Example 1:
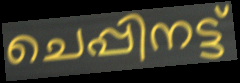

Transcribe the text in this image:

ചെപ്പിനട്ട്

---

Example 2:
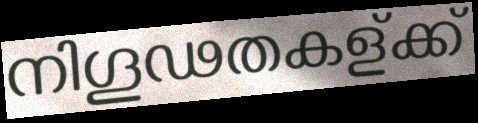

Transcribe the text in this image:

നിഗൂഢതകള്ക്ക്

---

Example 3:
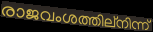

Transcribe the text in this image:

രാജവംശത്തില്നിന്ന്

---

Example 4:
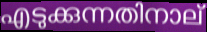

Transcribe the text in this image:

എടുക്കുന്നതിനാല്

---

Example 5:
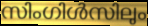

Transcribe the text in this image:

സിംഗിൾസിലും